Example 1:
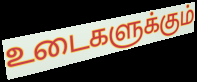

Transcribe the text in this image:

உடைகளுக்கும்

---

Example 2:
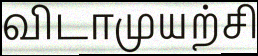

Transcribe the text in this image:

விடாமுயற்சி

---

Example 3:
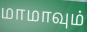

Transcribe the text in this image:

மாமாவும்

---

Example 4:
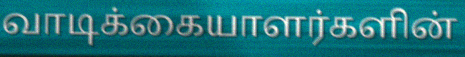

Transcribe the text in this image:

வாடிக்கையாளர்களின்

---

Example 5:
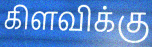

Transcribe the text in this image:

கிளவிக்கு